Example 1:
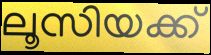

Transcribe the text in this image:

ലൂസിയക്ക്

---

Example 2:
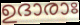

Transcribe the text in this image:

ഉദാരാഃ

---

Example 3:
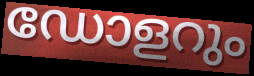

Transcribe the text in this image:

ഡോളറും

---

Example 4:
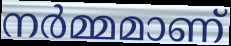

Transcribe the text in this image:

നർമ്മമാണ്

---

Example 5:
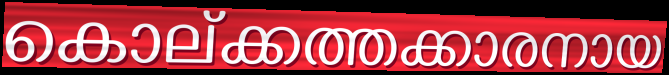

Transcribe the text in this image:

കൊല്ക്കത്തക്കാരനായ